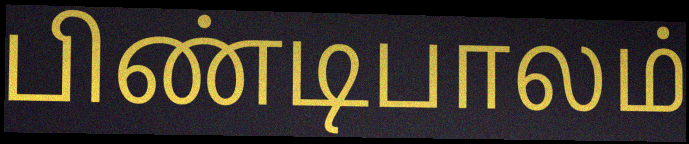
பிண்டிபாலம்